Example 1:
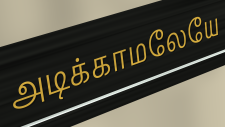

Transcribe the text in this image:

அடிக்காமலேயே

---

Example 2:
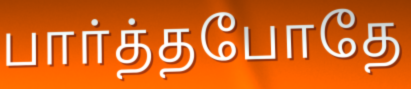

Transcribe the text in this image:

பார்த்தபோதே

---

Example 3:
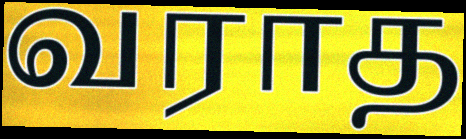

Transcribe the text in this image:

வராத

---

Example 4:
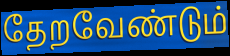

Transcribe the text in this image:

தேறவேண்டும்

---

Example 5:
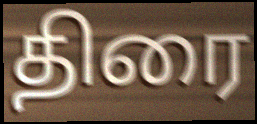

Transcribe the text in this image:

திரை